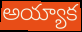
అయ్యాక